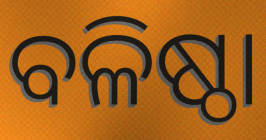
ବଳିଷ୍ଠା